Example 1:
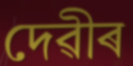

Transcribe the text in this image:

দেৱীৰ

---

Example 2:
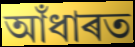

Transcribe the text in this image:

আঁধাৰত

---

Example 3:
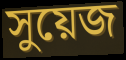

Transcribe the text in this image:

সুয়েজ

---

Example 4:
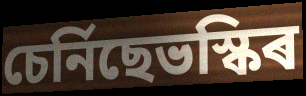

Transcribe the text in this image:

চেৰ্নিছেভস্কিৰ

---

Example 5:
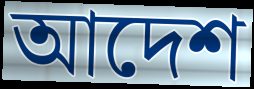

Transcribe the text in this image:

আদেশ